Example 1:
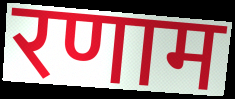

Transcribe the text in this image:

रणाम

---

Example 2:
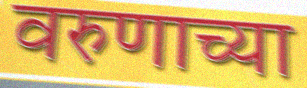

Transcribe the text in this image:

वरुणाच्या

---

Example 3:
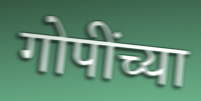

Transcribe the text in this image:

गोपींच्या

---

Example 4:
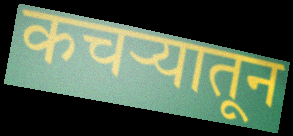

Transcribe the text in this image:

कचर्‍यातून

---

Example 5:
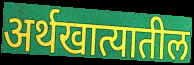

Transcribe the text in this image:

अर्थखात्यातील